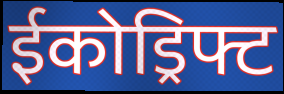
ईकोड्रिफ्ट